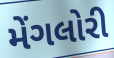
મેંગલોરી